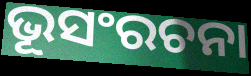
ଭୂସଂରଚନା